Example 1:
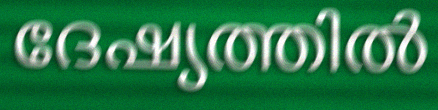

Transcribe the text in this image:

ദേഷ്യത്തിൽ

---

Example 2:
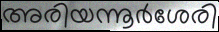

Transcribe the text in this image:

അരിയന്നൂർശേരി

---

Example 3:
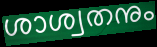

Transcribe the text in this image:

ശാശ്വതനും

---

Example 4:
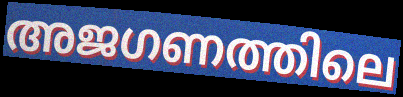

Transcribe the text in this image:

അജഗണത്തിലെ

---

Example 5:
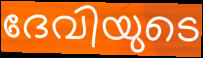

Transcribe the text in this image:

ദേവിയുടെ